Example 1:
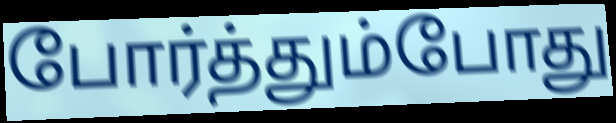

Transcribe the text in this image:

போர்த்தும்போது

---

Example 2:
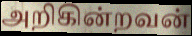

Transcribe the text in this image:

அறிகின்றவன்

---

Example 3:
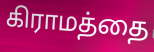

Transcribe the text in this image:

கிராமத்தை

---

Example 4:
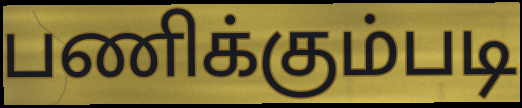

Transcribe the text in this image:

பணிக்கும்படி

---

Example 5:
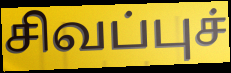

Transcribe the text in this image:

சிவப்புச்